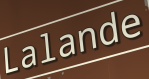
Lalande